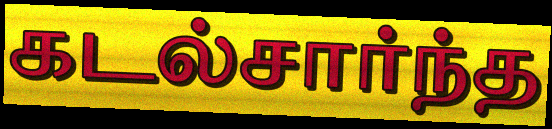
கடல்சார்ந்த